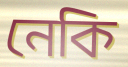
নেকি